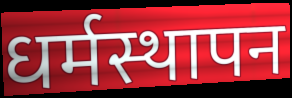
धर्मस्थापन